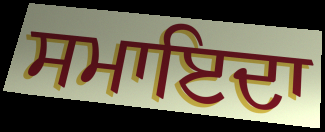
ਸਮਾਇਦਾ